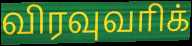
விரவுவரிக்